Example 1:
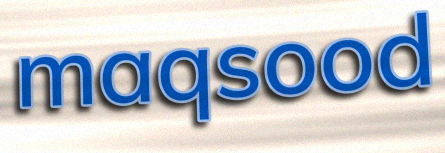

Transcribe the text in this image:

maqsood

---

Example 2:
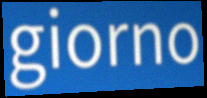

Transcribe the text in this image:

giorno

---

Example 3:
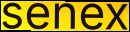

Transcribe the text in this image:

senex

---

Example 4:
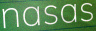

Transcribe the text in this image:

nasas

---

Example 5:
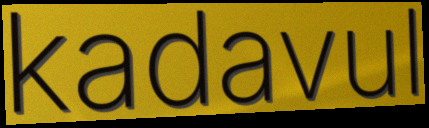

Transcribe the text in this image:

kadavul